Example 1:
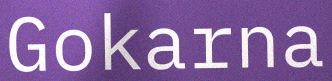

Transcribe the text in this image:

Gokarna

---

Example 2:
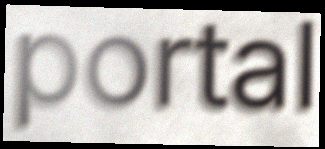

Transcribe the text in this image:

portal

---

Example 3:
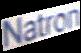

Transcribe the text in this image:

Natron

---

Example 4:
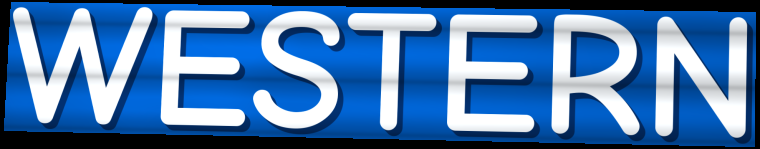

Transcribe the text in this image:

WESTERN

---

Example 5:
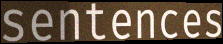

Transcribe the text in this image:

sentences